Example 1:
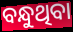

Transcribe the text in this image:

ବନ୍ଧୁଥିବା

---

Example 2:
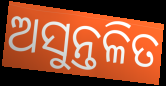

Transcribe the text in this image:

ଅସୁନ୍ତଳିତ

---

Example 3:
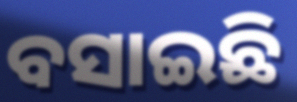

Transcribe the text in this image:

ବସାଇଛି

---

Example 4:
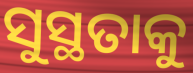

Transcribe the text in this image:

ସୁସ୍ଥତାକୁ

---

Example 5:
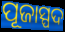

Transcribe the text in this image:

ପୂଜାସ୍ପଦ